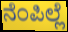
ನೆಂಪಿಲ್ಲೆ